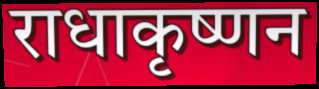
राधाकृष्णन